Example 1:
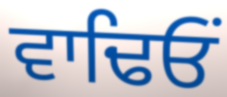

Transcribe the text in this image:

ਵਾਢਿਓਂ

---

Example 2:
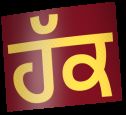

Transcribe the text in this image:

ਹੱਕ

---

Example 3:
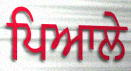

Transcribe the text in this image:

ਪਿਆਲੇ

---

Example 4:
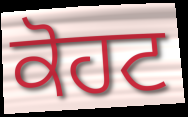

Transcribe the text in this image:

ਕੋਹਟ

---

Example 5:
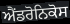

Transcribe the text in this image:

ਐਂਡਰੋਨਿਕੋਸ